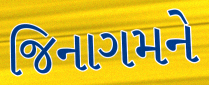
જિનાગમને